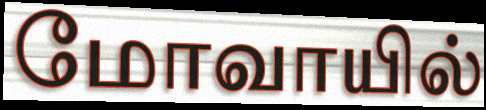
மோவாயில்